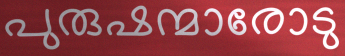
പുരുഷന്മാരോടു